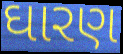
ઘારણ